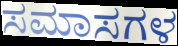
ಸಮಾಸಗಳ